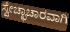
ಸ್ವೇಚ್ಛಾಚಾರವಾಗಿ